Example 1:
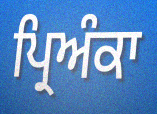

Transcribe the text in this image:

ਪ੍ਰਿਅੰਕਾ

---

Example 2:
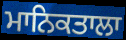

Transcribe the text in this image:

ਮਾਨਿਕਤਾਲਾ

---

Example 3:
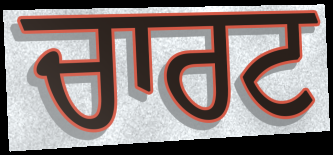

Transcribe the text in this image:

ਚਾਰਟ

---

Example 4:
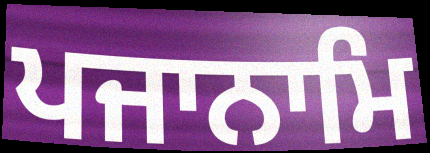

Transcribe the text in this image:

ਪਜਾਨਾਮਿ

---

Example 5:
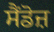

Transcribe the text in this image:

ਸੈਂਡੋਜ਼